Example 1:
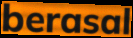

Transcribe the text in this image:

berasal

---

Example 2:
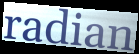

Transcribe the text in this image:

radian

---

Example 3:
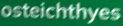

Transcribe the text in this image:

osteichthyes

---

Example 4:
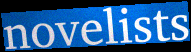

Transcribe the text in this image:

novelists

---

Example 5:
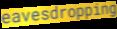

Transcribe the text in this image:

eavesdropping